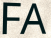
FA